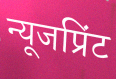
न्यूजप्रिंट